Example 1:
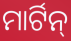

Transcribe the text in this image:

ମାର୍ଟିନ୍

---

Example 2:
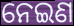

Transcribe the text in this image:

ନେଇଣ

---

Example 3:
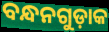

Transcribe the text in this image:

ବନ୍ଧନଗୁଡ଼ାକ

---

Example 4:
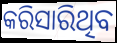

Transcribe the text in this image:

କରିସାରିଥିବ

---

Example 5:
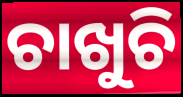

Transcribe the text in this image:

ଚାଖୁଚି